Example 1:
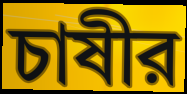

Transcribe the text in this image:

চাষীর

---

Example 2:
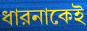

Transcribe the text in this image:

ধারনাকেই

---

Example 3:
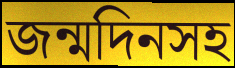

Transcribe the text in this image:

জন্মদিনসহ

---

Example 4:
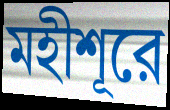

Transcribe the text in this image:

মহীশূরে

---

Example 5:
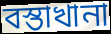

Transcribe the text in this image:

বস্তাখানা